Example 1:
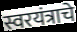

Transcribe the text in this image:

स्वरयंत्राचे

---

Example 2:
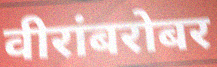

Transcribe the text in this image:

वीरांबरोबर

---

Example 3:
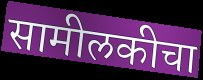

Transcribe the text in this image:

सामीलकीचा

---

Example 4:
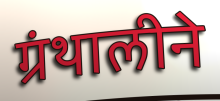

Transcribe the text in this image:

ग्रंथालीने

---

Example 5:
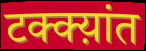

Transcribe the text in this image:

टक्क्य़ांत